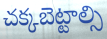
చక్కబెట్టాల్సి